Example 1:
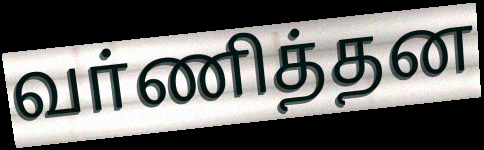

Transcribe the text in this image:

வர்ணித்தன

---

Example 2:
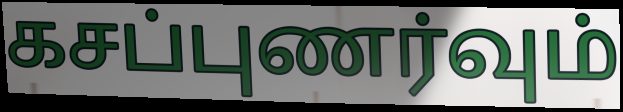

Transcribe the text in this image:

கசப்புணர்வும்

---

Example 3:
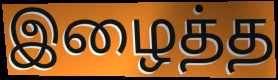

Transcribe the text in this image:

இழைத்த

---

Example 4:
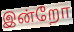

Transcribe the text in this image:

இன்றோ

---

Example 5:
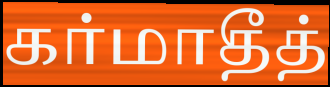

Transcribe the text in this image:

கர்மாதீத்